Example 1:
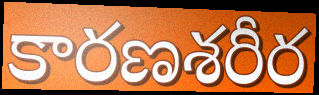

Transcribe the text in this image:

కారణశరీర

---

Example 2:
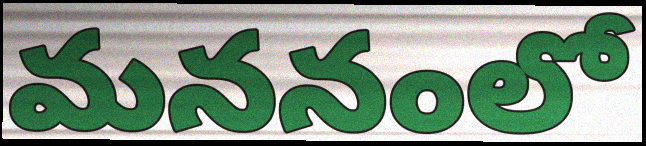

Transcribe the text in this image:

మననంలో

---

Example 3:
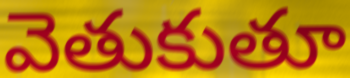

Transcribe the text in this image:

వెతుకుతూ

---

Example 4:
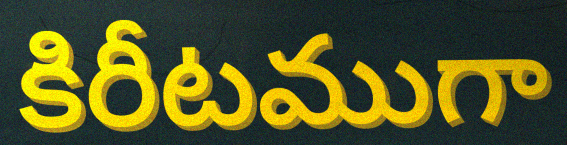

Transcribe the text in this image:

కిరీటముగా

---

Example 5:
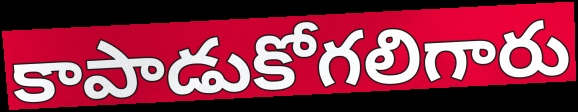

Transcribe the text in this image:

కాపాడుకోగలిగారు